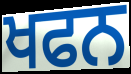
ਖਫਨ